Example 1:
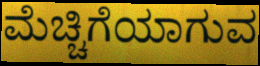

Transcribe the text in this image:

ಮೆಚ್ಚಿಗೆಯಾಗುವ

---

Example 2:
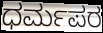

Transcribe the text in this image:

ಧರ್ಮಪರ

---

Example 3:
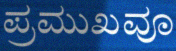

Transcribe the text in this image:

ಪ್ರಮುಖವೂ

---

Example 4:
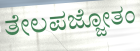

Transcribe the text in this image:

ತೇಲಪಜ್ಜೋತಂ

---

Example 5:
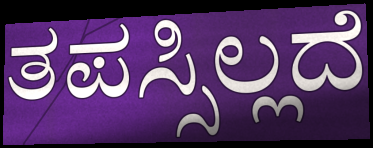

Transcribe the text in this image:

ತಪಸ್ಸಿಲ್ಲದೆ